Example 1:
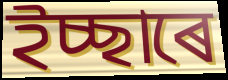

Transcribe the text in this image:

ইচ্ছাৰে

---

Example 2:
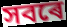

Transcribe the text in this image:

সবৰে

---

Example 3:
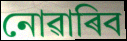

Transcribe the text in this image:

নোৱাৰিব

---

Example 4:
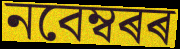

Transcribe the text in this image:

নবেম্বৰৰ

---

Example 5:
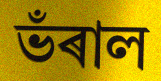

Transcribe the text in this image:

ভঁৰাল